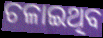
ଚଳାଇଥିବ